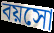
বয়সো